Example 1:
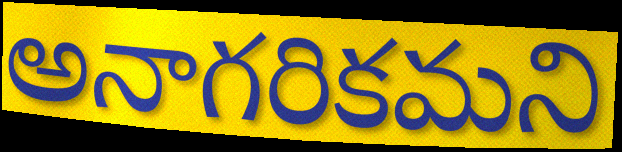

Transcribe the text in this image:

అనాగరికమని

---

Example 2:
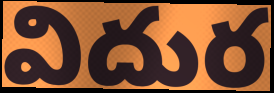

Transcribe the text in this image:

విదుర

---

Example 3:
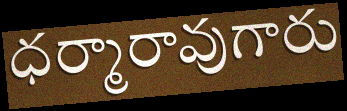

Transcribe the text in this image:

ధర్మారావుగారు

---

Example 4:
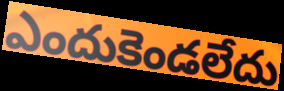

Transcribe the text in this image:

ఎందుకెండలేదు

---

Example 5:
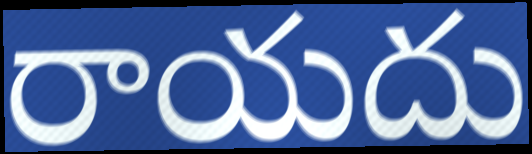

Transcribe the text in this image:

రాయదు